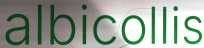
albicollis